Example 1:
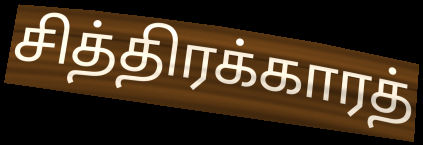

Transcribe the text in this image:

சித்திரக்காரத்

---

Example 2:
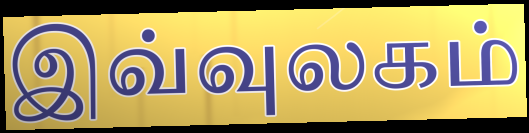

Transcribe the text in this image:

இவ்வுலகம்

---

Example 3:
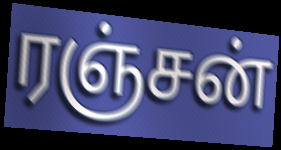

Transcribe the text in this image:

ரஞ்சன்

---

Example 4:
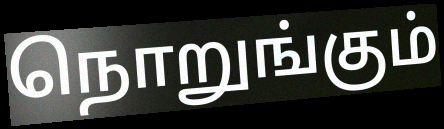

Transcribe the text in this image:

நொறுங்கும்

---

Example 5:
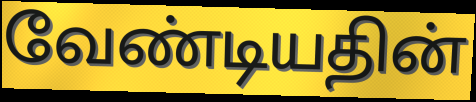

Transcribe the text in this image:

வேண்டியதின்